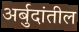
अर्बुदांतील